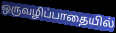
ஒருவழிப்பாதையில்